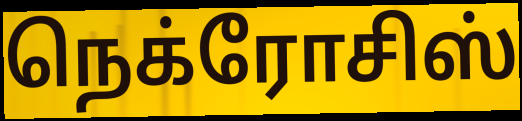
நெக்ரோசிஸ்